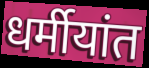
धर्मीयांत